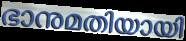
ഭാനുമതിയായി